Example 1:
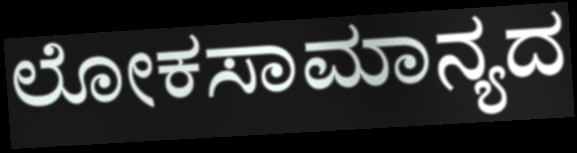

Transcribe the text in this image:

ಲೋಕಸಾಮಾನ್ಯದ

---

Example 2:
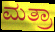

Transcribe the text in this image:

ಮತ್ರಾ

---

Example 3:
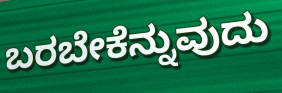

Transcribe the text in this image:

ಬರಬೇಕೆನ್ನುವುದು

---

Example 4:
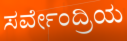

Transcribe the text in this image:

ಸರ್ವೇಂದ್ರಿಯ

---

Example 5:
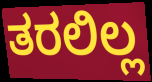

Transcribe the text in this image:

ತರಲಿಲ್ಲ